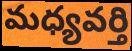
మధ్యవర్తి